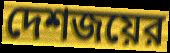
দেশজয়ের